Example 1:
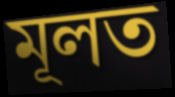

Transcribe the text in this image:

মূলত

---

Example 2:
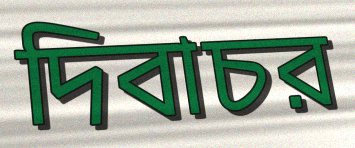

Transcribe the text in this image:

দিবাচর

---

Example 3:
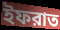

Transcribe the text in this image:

ইফরাত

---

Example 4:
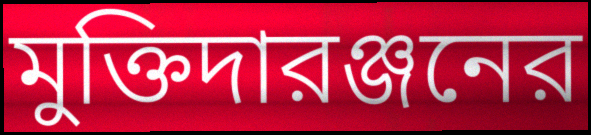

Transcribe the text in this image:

মুক্তিদারঞ্জনের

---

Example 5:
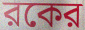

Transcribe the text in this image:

রকের